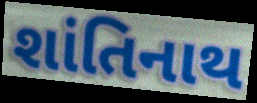
શાંતિનાથ